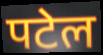
पटेल